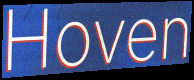
Hoven